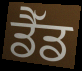
ਡੈੱਡ